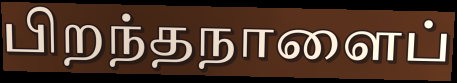
பிறந்தநாளைப்